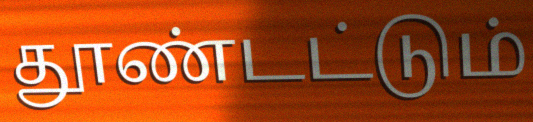
தூண்டட்டும்